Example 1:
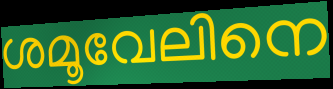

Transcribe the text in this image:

ശമൂവേലിനെ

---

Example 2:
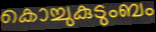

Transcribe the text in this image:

കൊച്ചുകുടുംബം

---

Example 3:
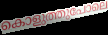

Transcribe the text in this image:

കൊളുത്തുപോലെ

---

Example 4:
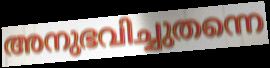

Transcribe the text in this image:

അനുഭവിച്ചുതന്നെ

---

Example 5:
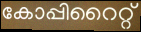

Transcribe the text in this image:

കോപ്പിറൈറ്റ്